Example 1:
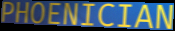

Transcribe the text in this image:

PHOENICIAN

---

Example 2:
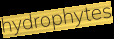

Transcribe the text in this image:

hydrophytes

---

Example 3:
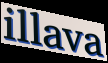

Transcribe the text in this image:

illava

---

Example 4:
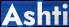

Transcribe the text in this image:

Ashti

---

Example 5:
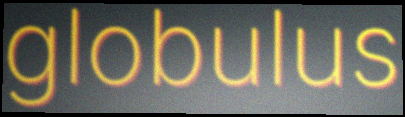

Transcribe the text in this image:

globulus